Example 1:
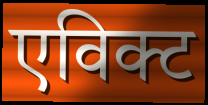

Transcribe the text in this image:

एविक्ट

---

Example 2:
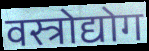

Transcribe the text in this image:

वस्त्रोद्योग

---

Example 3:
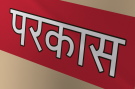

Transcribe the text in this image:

परकास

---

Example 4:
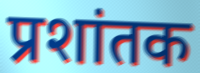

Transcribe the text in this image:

प्रशांतक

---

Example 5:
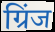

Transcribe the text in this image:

ग्रिंज